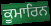
ਕੂਮਾਰਿਨ